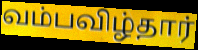
வம்பவிழ்தார்